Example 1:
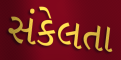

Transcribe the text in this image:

સંકેલતા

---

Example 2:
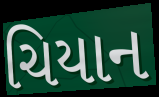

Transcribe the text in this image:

ચિયાન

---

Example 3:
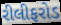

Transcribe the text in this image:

રીલીફરોડ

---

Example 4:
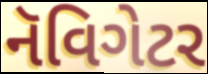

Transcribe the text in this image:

નૅવિગેટર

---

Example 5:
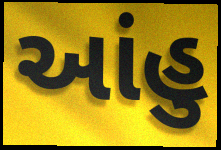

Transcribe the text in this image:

આંહુ